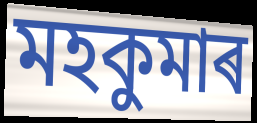
মহকুমাৰ